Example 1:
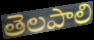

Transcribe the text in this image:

తెలపాలి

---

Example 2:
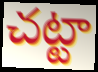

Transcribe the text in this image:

చట్టా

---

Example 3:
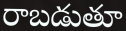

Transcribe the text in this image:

రాబడుతూ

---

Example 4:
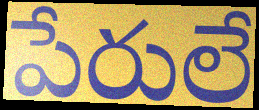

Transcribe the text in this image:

పేరులే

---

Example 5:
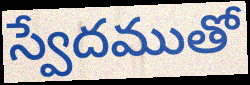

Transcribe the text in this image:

స్వేదముతో